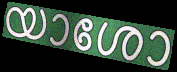
യാശോ